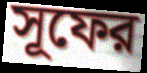
সূফের